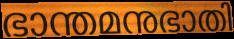
ഭാന്തമനുഭാതി